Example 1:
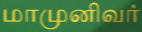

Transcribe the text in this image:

மாமுனிவர்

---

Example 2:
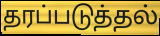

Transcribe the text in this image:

தரப்படுத்தல்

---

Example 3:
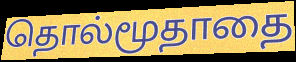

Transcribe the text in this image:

தொல்மூதாதை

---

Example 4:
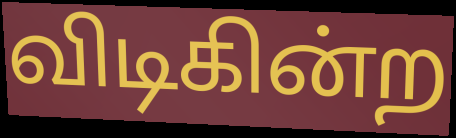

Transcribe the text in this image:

விடிகின்ற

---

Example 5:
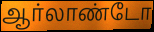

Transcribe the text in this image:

ஆர்லாண்டோ